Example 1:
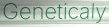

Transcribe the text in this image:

Geneticaly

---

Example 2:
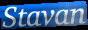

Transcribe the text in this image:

Stavan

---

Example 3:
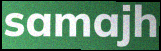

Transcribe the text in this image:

samajh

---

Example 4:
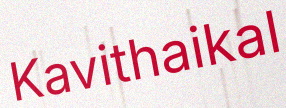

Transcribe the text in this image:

Kavithaikal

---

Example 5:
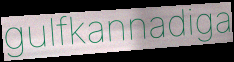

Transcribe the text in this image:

gulfkannadiga